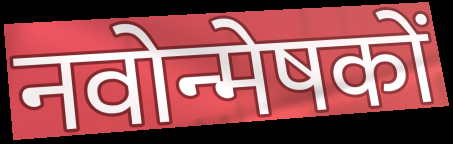
नवोन्‍मेषकों